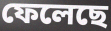
ফেলেছে